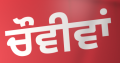
ਚੌਵੀਵਾਂ